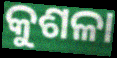
କୁଶଳା